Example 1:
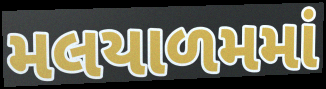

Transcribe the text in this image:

મલયાળમમાં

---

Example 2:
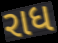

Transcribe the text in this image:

રાધ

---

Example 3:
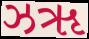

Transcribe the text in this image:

ઝૠ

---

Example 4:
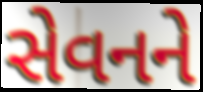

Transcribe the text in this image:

સેવનને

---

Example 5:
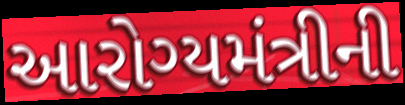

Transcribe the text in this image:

આરોગ્યમંત્રીની